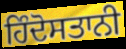
ਹਿੰਦੋਸਤਾਨੀ